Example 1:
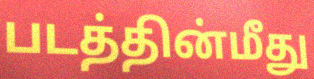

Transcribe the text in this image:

படத்தின்மீது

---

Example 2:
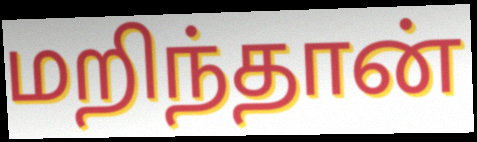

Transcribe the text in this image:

மறிந்தான்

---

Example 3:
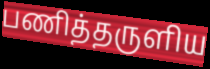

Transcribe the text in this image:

பணித்தருளிய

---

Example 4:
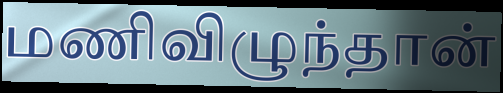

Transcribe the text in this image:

மணிவிழுந்தான்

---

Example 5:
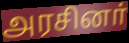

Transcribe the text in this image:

அரசினர்